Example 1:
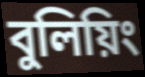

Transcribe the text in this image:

বুলিয়িং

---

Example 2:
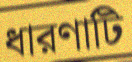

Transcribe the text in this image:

ধারণাটি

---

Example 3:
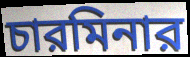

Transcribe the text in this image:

চারমিনার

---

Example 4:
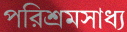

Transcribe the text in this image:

পরিশ্রমসাধ্য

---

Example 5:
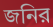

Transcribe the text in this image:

জনির